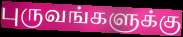
புருவங்களுக்கு